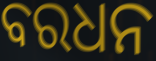
ବରଧନ